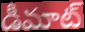
డీమాట్